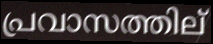
പ്രവാസത്തില്